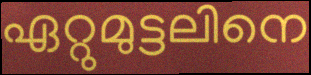
ഏറ്റുമുട്ടലിനെ